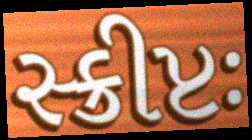
સ્ક્રીપ્ટઃ